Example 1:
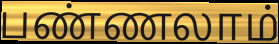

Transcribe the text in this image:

பண்ணலாம்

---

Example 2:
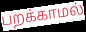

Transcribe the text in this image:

பறக்காமல்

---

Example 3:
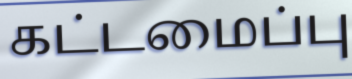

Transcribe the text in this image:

கட்டமைப்பு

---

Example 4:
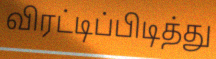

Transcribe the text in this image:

விரட்டிப்பிடித்து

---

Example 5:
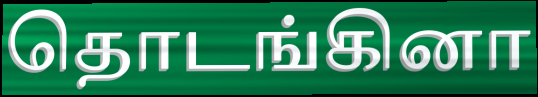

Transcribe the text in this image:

தொடங்கினா